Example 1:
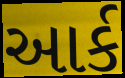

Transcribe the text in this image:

આર્ક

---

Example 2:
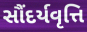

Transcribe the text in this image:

સૌંદર્યવૃત્તિ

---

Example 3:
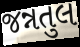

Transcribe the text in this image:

જન્નતુલ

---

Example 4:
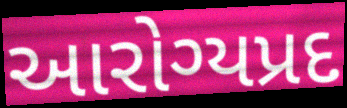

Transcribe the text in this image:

આરોગ્યપ્રદ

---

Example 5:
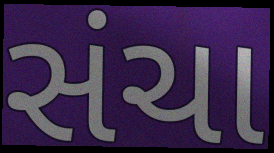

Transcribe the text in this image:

સંચા